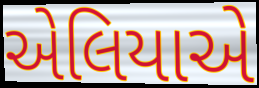
એલિયાએ